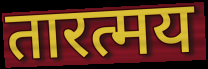
तारत्मय